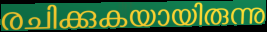
രചിക്കുകയായിരുന്നു